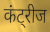
कंट्रीज